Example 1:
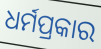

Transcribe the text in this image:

ଧର୍ମପ୍ରକାର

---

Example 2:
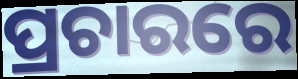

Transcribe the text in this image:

ପ୍ରଚାରରେ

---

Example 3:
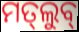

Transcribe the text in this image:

ମତ୍‌ଲୁବ୍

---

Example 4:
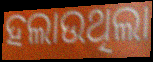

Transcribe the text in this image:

ହଲାଉଥିଲା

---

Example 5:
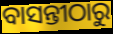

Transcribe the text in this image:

ବାସନ୍ତୀଠାରୁ